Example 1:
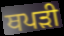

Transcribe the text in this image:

ਥਪੜੀ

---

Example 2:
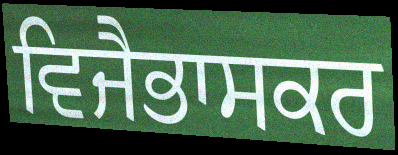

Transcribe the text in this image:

ਵਿਜੈਭਾਸਕਰ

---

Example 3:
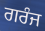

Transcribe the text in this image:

ਗਰੰਜ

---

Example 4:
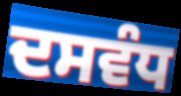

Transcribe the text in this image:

ਦਸਵੰਧ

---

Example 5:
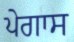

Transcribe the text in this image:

ਪੇਗਾਸ